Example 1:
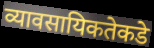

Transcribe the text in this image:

व्यावसायिकतेकडे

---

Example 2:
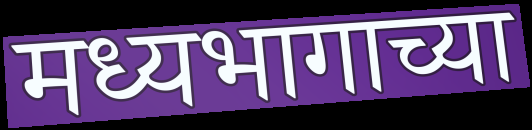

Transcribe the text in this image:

मध्यभागाच्या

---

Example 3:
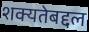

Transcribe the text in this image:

शक्यतेबद्दल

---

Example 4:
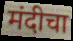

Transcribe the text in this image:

मंदीचा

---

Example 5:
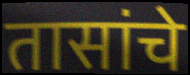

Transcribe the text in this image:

तासांचे